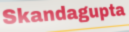
Skandagupta